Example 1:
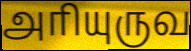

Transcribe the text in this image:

அரியுருவ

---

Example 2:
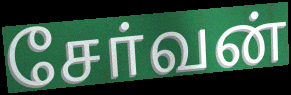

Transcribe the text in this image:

சேர்வன்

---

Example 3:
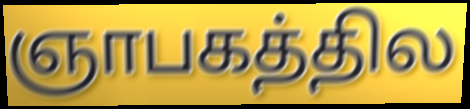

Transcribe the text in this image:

ஞாபகத்தில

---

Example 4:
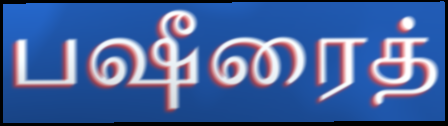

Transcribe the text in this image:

பஷீரைத்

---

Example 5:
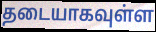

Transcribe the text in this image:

தடையாகவுள்ள